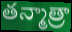
తన్మాత్రా